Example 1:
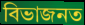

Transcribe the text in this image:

বিভাজনত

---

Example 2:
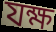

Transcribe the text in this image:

যক্ষ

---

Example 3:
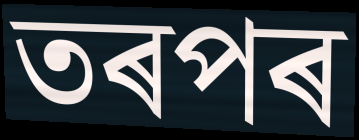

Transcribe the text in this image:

তৰপৰ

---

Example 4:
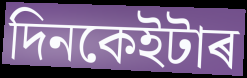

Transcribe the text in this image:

দিনকেইটাৰ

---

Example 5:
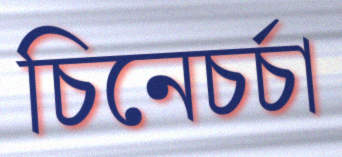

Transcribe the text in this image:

চিনেচৰ্চা